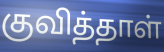
குவித்தாள்